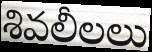
శివలీలలు